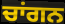
ਚਾਂਗਨ